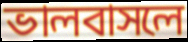
ভালবাসলে